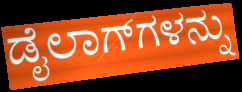
ಡೈಲಾಗ್‌ಗಳನ್ನು